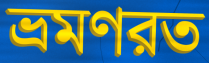
ভ্রমণরত